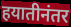
हयातीनंतर